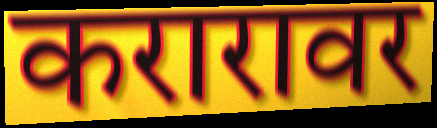
करारावर